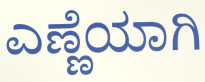
ಎಣ್ಣೆಯಾಗಿ